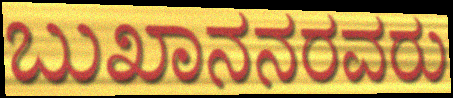
ಬುಖಾನನರವರು